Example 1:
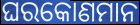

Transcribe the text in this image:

ଘରକୋଣମାନ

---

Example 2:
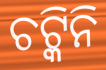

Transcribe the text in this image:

ଚଟ୍କିନି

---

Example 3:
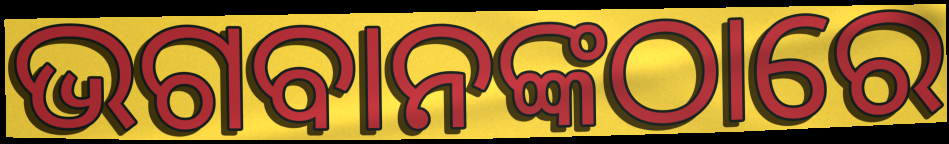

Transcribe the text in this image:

ଭଗବାନଙ୍କଠାରେ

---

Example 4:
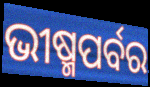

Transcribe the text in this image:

ଭୀଷ୍ମପର୍ବର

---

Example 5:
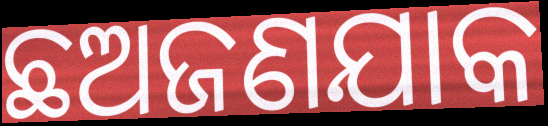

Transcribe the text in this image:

ଛଅଜଣଯାକ